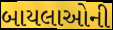
બાયલાઓની